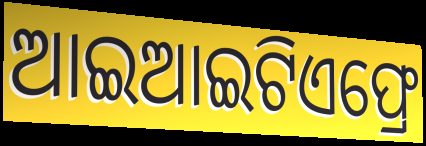
ଆଇଆଇଟିଏଫ୍ରେ